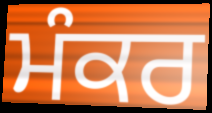
ਮੰਕਰ